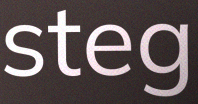
steg